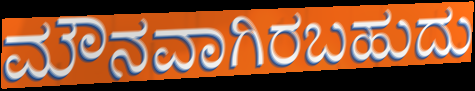
ಮೌನವಾಗಿರಬಹುದು